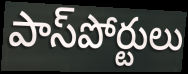
పాస్‌పోర్టులు